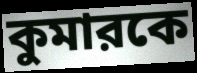
কুমারকে